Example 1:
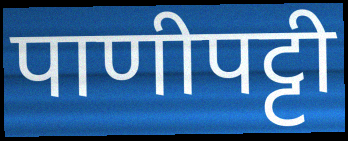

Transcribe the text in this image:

पाणीपट्टी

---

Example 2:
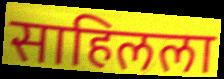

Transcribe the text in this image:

साहिलला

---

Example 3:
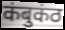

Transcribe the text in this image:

कंबुकंठ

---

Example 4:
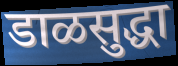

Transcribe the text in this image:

डाळसुद्धा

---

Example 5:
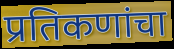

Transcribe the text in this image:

प्रतिकणांचा